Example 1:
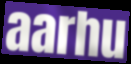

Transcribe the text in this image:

aarhu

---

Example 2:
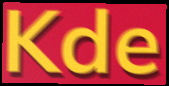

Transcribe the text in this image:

Kde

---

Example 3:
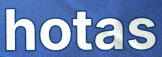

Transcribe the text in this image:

hotas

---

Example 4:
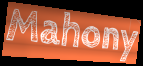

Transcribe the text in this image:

Mahony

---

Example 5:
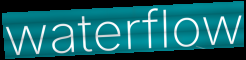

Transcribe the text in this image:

waterflow